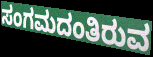
ಸಂಗಮದಂತಿರುವ